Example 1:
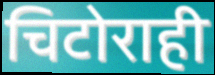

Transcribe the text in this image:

चिटोराही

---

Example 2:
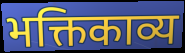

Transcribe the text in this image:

भक्तिकाव्य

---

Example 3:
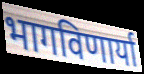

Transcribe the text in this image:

भागविणार्या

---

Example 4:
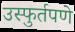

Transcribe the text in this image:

उस्फुर्तपणे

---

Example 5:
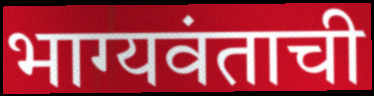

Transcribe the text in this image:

भाग्यवंताची